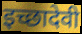
इच्छादेवी